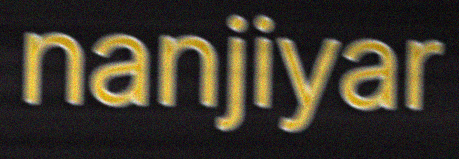
nanjiyar